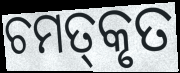
ଚମତ୍‍କୃତ